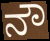
ನೌ